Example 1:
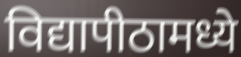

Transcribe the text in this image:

विद्यापीठामध्ये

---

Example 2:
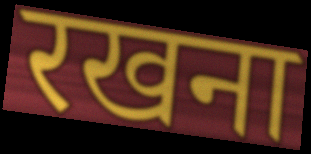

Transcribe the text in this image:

रखना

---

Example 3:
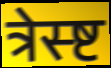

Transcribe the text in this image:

त्रेस्ष्ट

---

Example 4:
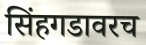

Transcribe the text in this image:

सिंहगडावरच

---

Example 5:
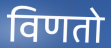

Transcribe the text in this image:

विणतो